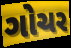
ગોચર